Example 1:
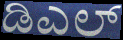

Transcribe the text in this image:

ಡಿಎಲ್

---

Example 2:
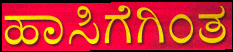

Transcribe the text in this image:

ಹಾಸಿಗೆಗಿಂತ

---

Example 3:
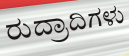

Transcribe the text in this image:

ರುದ್ರಾದಿಗಳು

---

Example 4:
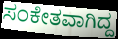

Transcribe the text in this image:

ಸಂಕೇತವಾಗಿದ್ದ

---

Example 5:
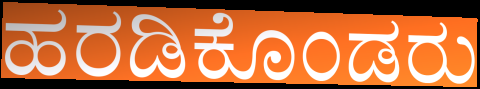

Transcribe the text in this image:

ಹರಡಿಕೊಂಡರು